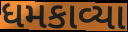
ધમકાવ્યા